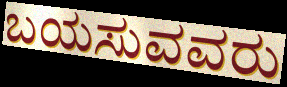
ಬಯಸುವವರು